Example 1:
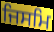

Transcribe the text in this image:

ਜਿਸਮਿ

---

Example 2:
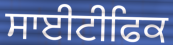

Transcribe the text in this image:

ਸਾਈਟੀਫਿਕ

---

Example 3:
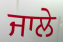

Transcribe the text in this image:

ਜਾਲੇ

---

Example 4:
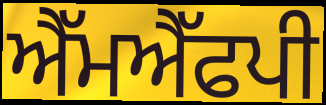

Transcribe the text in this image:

ਐੱਮਐੱਫਪੀ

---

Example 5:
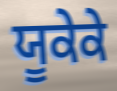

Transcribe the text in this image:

ਯੂਕੇਕੇ